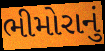
ભીમોરાનું